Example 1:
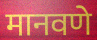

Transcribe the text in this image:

मानवणे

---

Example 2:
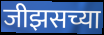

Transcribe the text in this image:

जीझसच्या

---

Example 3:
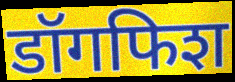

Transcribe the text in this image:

डॉगफिश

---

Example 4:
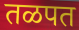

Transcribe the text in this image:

तळपत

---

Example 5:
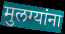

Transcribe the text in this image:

मुलग्यांना